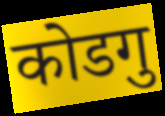
कोडगु